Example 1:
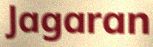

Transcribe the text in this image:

Jagaran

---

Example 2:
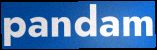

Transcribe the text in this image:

pandam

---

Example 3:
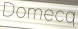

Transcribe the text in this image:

Domecq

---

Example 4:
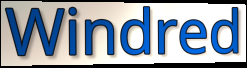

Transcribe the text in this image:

Windred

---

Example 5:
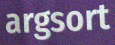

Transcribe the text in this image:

argsort